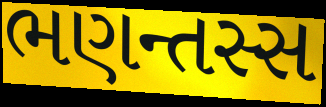
ભણન્તસ્સ